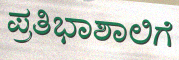
ಪ್ರತಿಭಾಶಾಲಿಗೆ